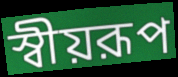
স্বীয়রূপ